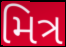
મિત્ર